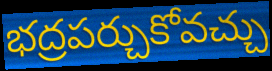
భద్రపర్చుకోవచ్చు